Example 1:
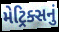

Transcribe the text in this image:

મેટ્રિક્સનું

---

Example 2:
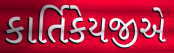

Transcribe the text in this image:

કાર્તિકેયજીએ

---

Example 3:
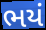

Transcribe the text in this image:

ભયં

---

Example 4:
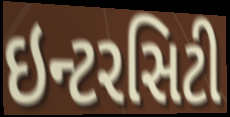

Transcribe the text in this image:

ઇન્ટરસિટી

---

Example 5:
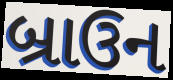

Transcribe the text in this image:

બ્રાઉન